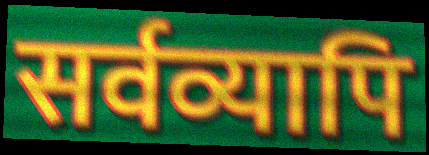
सर्वव्यापि